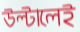
উল্টালেই